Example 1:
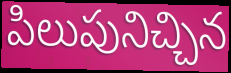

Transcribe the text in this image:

పిలుపునిచ్చిన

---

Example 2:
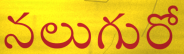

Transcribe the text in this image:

నలుగురో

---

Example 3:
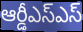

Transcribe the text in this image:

ఆర్డీఎస్ఎస్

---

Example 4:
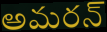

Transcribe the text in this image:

అమరన్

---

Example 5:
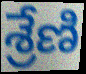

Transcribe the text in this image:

శ్రేణి